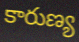
కారుణ్య